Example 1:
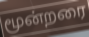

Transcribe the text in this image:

மூன்றரை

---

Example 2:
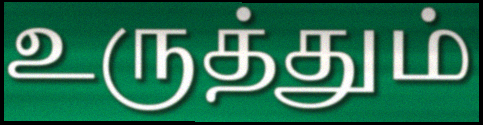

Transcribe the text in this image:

உருத்தும்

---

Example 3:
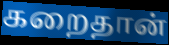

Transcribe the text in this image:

கறைதான்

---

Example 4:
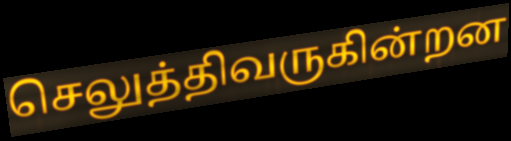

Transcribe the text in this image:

செலுத்திவருகின்றன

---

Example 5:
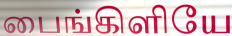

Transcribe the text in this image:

பைங்கிளியே